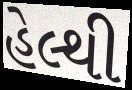
હેલ્થી